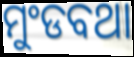
ମୁଂଡବଥା